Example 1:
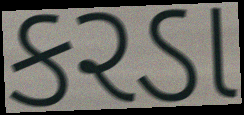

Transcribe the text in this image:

કરડા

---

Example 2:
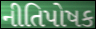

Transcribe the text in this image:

નીતિપોષક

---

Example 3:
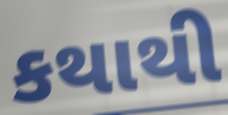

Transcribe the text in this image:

કથાથી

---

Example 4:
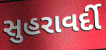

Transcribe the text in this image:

સુહરાવર્દી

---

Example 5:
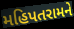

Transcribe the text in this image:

મહિપતરામને